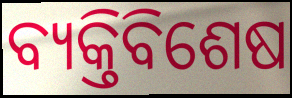
ବ୍ୟକ୍ତିବିଶେଷ